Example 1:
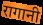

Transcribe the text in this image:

रागानी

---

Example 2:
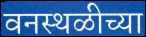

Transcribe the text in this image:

वनस्थळीच्या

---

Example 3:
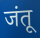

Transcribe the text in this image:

जंतू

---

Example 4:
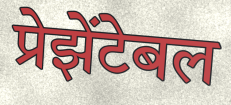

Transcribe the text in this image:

प्रेझेंटेबल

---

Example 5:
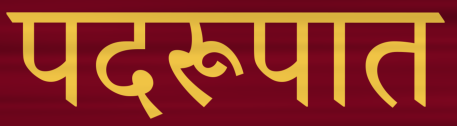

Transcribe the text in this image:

पदरूपात